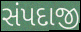
સંપદાજી